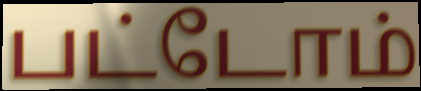
பட்டோம்